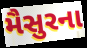
મૈસુરના